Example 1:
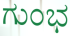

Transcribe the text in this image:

ಗುಂಭ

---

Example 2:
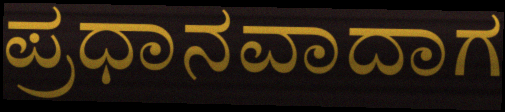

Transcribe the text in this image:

ಪ್ರಧಾನವಾದಾಗ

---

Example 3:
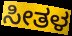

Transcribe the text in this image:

ಸೀತಳ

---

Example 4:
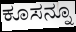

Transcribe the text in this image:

ಕೂಸನ್ನೂ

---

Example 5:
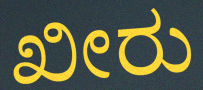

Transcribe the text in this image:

ಖೀರು